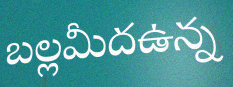
బల్లమీదఉన్న